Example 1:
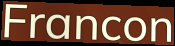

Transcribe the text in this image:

Francon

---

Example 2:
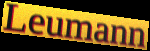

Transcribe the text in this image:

Leumann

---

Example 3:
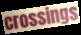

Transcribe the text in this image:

crossings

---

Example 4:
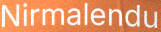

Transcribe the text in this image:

Nirmalendu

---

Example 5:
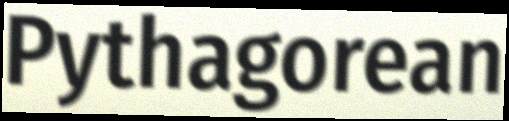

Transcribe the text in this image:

Pythagorean